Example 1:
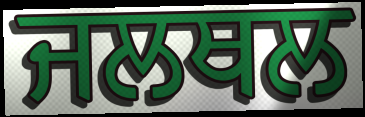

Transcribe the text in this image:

ਜਲਥਲ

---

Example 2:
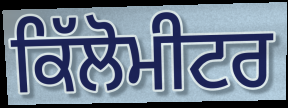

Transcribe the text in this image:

ਕਿੱਲੋਮੀਟਰ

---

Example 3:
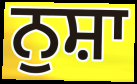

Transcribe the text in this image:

ਨੁਸ਼ਾ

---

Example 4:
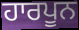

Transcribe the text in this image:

ਹਾਰਪੂਨ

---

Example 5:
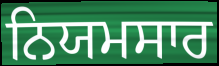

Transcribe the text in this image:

ਨਿਯਮਸਾਰ